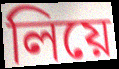
লিয়ে